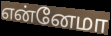
என்னேமா